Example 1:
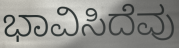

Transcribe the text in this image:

ಭಾವಿಸಿದೆವು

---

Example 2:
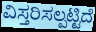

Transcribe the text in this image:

ವಿಸ್ತರಿಸಲ್ಪಟ್ಟಿದೆ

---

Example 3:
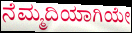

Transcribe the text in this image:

ನೆಮ್ಮದಿಯಾಗಿಯೇ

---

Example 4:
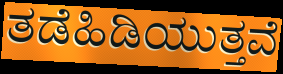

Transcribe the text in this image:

ತಡೆಹಿಡಿಯುತ್ತವೆ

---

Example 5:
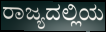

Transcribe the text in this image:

ರಾಜ್ಯದಲ್ಲಿಯ